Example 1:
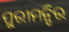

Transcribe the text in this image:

ପୁରୀମନ୍ଦିର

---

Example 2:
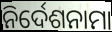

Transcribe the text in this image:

ନିର୍ଦେଶନାମା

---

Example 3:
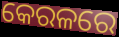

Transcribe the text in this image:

କେରଳରେ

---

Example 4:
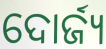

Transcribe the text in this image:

ଦୋର୍ଜ୍ୟ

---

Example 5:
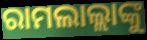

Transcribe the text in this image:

ରାମଲାଲ୍ଲାଙ୍କୁ